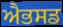
ਐਭਸਡ